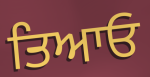
ਤਿਆਓ